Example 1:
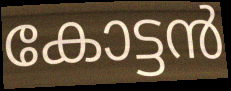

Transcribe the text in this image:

കോട്ടൻ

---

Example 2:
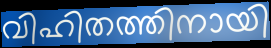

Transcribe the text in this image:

വിഹിതത്തിനായി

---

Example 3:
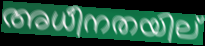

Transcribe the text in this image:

അധീനതയില്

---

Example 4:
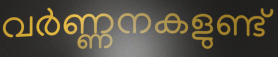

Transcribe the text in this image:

വർണ്ണനകളുണ്ട്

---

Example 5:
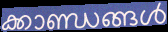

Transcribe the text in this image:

ക്കാണ്ഡങ്ങൾ